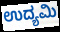
ಉದ್ಯಮಿ